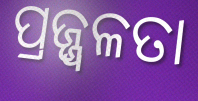
ପ୍ରଜ୍ଜ୍ୱଳତା